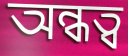
অন্ধত্ব